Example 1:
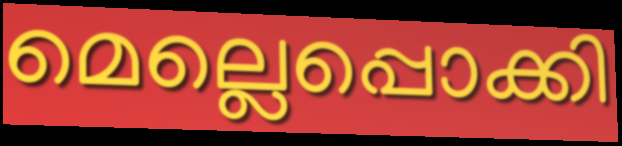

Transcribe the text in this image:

മെല്ലെപ്പൊക്കി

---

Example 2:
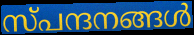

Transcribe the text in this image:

സ്പന്ദനങ്ങൾ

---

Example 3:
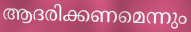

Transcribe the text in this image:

ആദരിക്കണമെന്നും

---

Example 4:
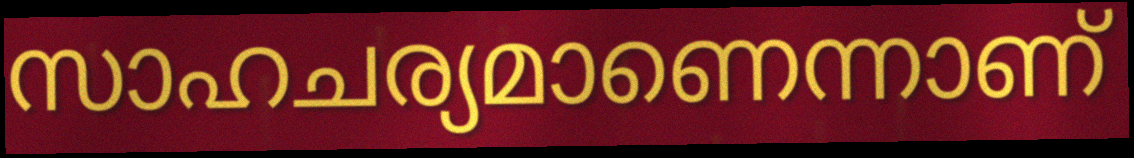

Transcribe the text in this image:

സാഹചര്യമാണെന്നാണ്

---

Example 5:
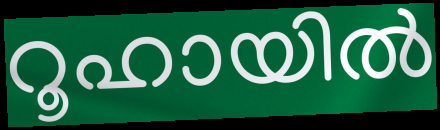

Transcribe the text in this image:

റൂഹായിൽ